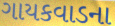
ગાયકવાડના